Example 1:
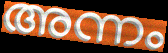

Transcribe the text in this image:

അന്നം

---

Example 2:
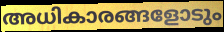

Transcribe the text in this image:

അധികാരങ്ങളോടും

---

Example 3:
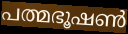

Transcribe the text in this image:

പത്മഭൂഷൺ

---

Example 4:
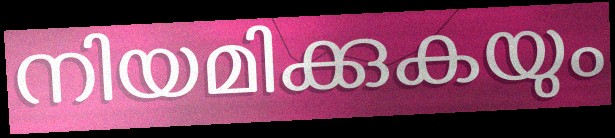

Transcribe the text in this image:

നിയമിക്കുകയും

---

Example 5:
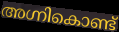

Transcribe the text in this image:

അഗ്നികൊണ്ട്